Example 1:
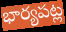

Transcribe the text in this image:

భార్యపట్ల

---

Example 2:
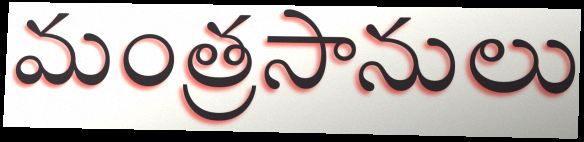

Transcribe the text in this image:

మంత్రసానులు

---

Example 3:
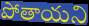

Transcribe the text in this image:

పోతాయని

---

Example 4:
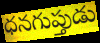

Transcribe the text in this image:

ధనగుప్తుడు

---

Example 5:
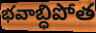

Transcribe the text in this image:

భవాబ్ధిపోత